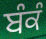
ਬੰਕੰ